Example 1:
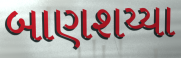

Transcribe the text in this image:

બાણશય્યા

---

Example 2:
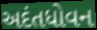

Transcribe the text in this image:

અદંતધોવન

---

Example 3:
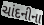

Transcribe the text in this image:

ચાંદનીના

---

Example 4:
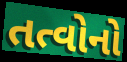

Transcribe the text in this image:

તત્વોનો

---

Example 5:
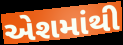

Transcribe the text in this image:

એશમાંથી